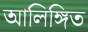
আলিঙ্গিত